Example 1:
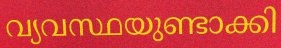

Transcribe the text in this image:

വ്യവസ്ഥയുണ്ടാക്കി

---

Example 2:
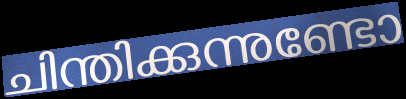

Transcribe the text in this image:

ചിന്തിക്കുന്നുണ്ടോ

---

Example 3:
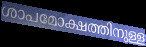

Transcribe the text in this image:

ശാപമോക്ഷത്തിനുള്ള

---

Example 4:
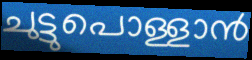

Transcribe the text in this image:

ചുട്ടുപൊള്ളാൻ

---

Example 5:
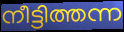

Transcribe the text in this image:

നീട്ടിത്തന്ന